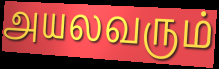
அயலவரும்